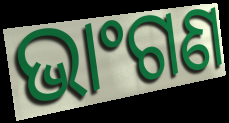
ଭାଂଗଣ